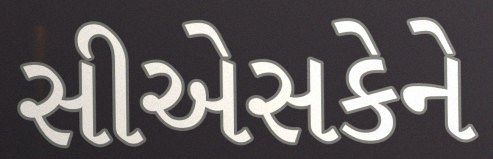
સીએસકેને